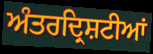
ਅੰਤਰਦ੍ਰਿਸ਼ਟੀਆਂ